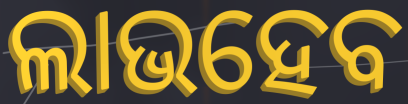
ଲାଭହେବ